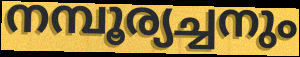
നമ്പൂര്യച്ചനും